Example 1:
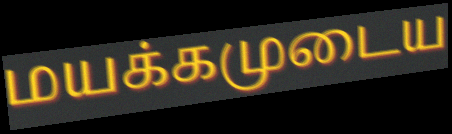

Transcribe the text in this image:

மயக்கமுடைய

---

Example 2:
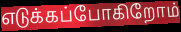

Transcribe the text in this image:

எடுக்கப்போகிறோம்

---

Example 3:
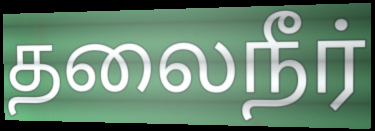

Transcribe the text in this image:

தலைநீர்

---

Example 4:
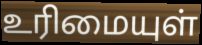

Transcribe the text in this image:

உரிமையுள்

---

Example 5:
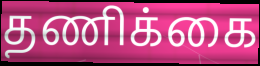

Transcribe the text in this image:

தணிக்கை